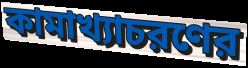
কামাখ্যাচরণের